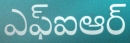
ఎఫ్ఐఆర్